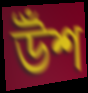
উঁশ